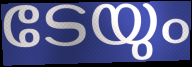
ടേയും